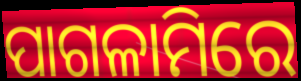
ପାଗଳାମିରେ